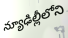
న్యూఢిల్లీలోని